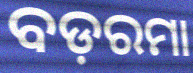
ବଡ଼ରମା